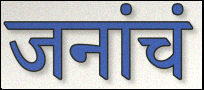
जनांचं